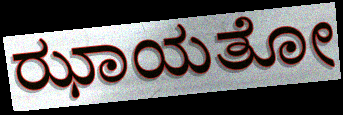
ಝಾಯತೋ